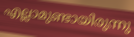
എല്ലാമുണ്ടായിരുന്നു